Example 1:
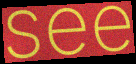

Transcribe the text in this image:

see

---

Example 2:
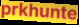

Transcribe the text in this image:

prkhunte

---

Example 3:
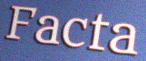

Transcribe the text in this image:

Facta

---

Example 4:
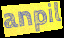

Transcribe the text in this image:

anpil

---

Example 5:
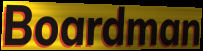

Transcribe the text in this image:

Boardman